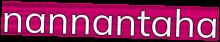
nannantaha